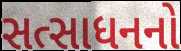
સત્સાધનનો